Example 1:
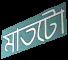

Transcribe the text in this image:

মাতটো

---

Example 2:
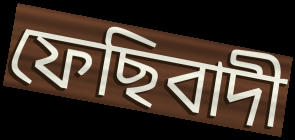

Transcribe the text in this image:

ফেছিবাদী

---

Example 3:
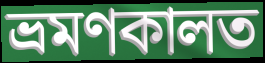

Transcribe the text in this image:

ভ্ৰমণকালত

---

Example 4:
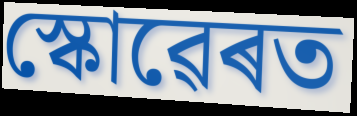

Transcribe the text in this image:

স্কোৱেৰত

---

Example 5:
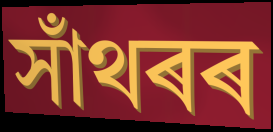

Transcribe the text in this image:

সাঁথৰৰ